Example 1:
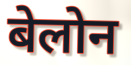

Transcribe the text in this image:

बेलोन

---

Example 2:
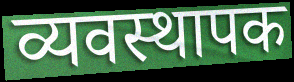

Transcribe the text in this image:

व्यवस्थापक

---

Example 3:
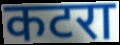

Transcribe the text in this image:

कटरा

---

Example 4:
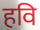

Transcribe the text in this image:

हवि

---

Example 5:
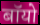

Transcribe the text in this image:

बॉयो